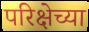
परिक्षेच्या